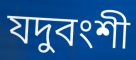
যদুবংশী